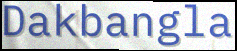
Dakbangla